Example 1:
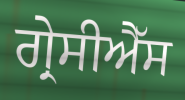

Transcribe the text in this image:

ਗ੍ਰੇਸੀਐੱਸ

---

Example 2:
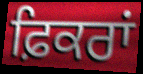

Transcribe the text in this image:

ਫ਼ਿਕਰਾਂ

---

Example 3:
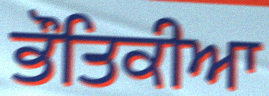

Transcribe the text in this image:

ਭੌਤਿਕੀਆ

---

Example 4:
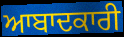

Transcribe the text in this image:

ਆਬਾਦਕਾਰੀ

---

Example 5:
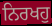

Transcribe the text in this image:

ਨਿਰਖਹੁ